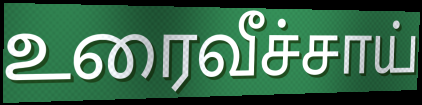
உரைவீச்சாய்